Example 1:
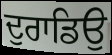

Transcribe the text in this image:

ਦੁਰਾਡਿਉ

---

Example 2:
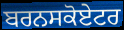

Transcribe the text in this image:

ਬਰਨਸਕੋਏਟਰ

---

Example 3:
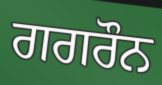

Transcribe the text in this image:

ਗਗਰੌਨ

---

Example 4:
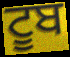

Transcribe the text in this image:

ਟੂਬ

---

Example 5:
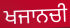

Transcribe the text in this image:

ਖਜਾਨਚੀ